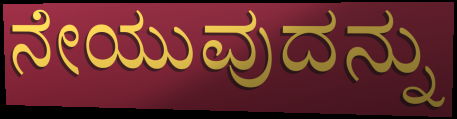
ನೇಯುವುದನ್ನು